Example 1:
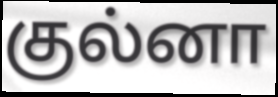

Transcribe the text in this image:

குல்னா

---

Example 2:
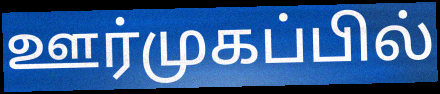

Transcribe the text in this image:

ஊர்முகப்பில்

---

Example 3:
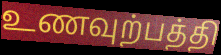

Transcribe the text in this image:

உணவுற்பத்தி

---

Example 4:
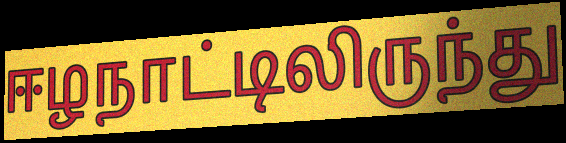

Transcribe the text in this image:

ஈழநாட்டிலிருந்து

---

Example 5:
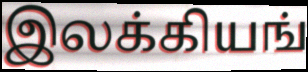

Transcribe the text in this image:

இலக்கியங்